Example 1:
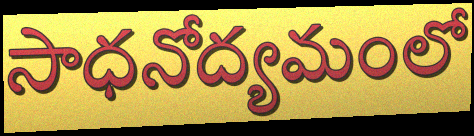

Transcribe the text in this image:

సాధనోద్యమంలో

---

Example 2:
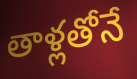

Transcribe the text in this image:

తాళ్లతోనే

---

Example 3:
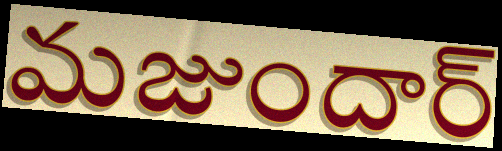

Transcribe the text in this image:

మజుందార్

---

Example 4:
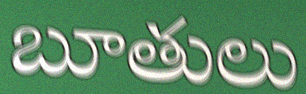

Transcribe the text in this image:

బూతులు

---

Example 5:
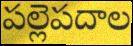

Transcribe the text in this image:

పల్లెపదాల